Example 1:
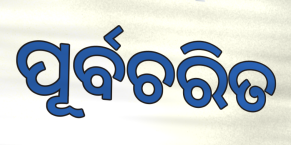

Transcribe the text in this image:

ପୂର୍ବଚରିତ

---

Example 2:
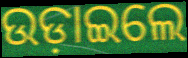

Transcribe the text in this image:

ଉଡ଼ାଇଲେ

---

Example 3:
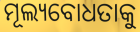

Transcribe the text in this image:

ମୂଲ୍ୟବୋଧତାକୁ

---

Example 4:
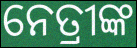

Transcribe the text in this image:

ନେତ୍ରୀଙ୍କ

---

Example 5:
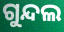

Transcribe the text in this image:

ଗୁନ୍ଦଲ